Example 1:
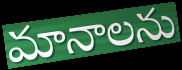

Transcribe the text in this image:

మానాలను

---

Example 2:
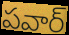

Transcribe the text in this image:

పవార్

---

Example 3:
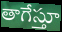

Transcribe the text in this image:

తాగేస్తూ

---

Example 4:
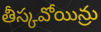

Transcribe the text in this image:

తీస్కవోయిన్రు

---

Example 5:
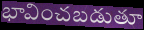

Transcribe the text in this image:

భావించబడుతూ